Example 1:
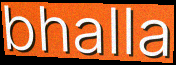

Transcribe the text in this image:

bhalla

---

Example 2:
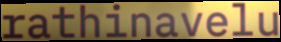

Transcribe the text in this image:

rathinavelu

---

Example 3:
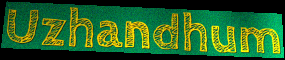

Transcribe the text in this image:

Uzhandhum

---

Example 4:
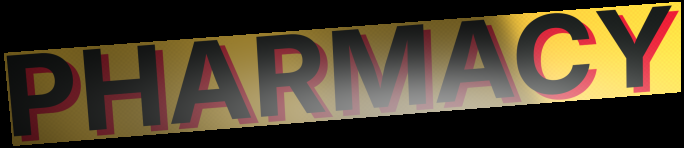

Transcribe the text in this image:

PHARMACY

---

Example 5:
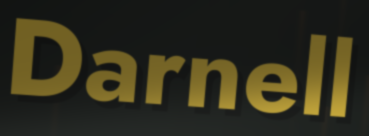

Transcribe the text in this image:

Darnell